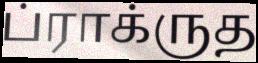
ப்ராக்ருத